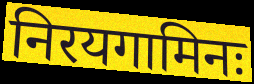
निरयगामिनः